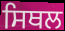
ਸਿਥਲ